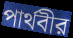
পার্থবীর